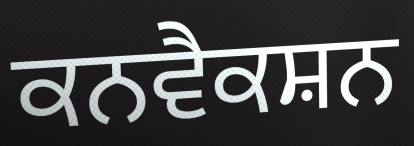
ਕਨਵੈਕਸ਼ਨ